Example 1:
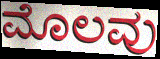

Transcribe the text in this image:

ಮೊಲವು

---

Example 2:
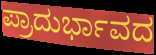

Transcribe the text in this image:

ಪ್ರಾದುರ್ಭಾವದ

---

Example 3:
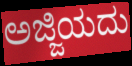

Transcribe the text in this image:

ಅಜ್ಜಿಯದು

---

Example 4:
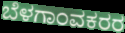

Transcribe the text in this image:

ಬೆಳಗಾಂವಕರರ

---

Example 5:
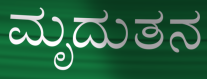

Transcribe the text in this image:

ಮೃದುತನ